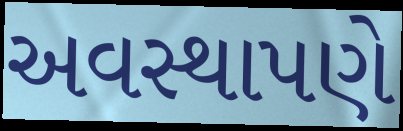
અવસ્થાપણે